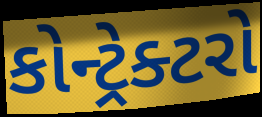
કોન્ટ્રેક્ટરો